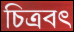
চিত্রবৎ